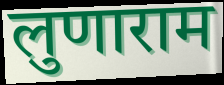
लुणाराम